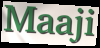
Maaji